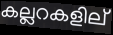
കല്ലറകളില്